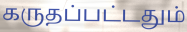
கருதப்பட்டதும்